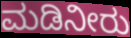
ಮಡಿನೀರು